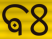
ଵଃ